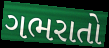
ગભરાતો